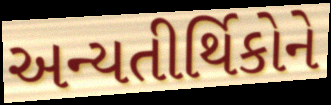
અન્યતીર્થિકોને